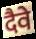
दैवे